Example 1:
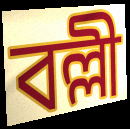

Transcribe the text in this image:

বল্লী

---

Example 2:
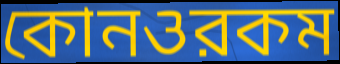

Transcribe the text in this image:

কোনওরকম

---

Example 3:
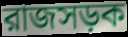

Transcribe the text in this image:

রাজসড়ক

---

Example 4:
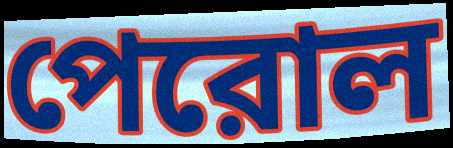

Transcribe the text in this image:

পেরোল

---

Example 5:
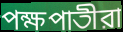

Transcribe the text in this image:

পক্ষপাতীরা